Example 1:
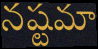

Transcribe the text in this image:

నష్టమా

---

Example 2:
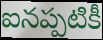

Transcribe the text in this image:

ఐనప్పటికీ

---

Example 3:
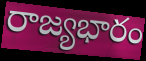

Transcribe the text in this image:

రాజ్యభారం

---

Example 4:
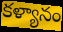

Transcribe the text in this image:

కళ్యానం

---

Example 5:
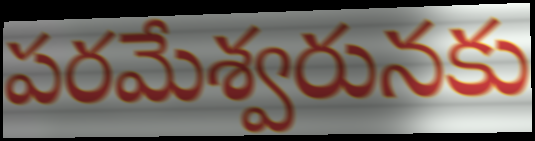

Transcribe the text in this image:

పరమేశ్వరునకు